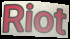
Riot